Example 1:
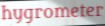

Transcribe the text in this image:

hygrometer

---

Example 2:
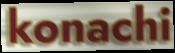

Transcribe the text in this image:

konachi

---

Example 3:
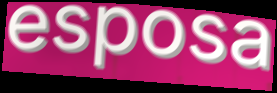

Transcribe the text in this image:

esposa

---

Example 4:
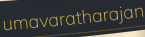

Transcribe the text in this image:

umavaratharajan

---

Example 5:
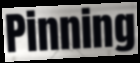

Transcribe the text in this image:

Pinning